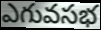
ఎగువసభ